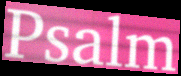
Psalm